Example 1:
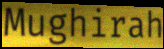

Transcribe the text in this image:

Mughirah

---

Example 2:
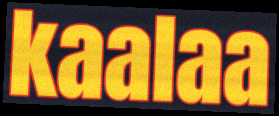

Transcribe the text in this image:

kaalaa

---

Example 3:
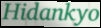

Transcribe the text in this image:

Hidankyo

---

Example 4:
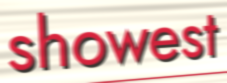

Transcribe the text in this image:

showest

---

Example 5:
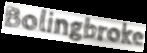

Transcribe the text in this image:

Bolingbroke